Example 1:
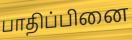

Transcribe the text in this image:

பாதிப்பினை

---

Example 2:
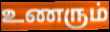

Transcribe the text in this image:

உணரும்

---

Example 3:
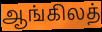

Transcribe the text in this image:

ஆங்கிலத்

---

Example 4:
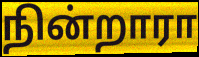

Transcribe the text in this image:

நின்றாரா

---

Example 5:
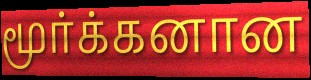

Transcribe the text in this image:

மூர்க்கனான